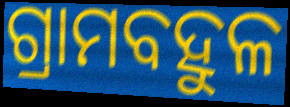
ଗ୍ରାମବହୁଳ